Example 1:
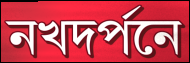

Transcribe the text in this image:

নখদর্পনে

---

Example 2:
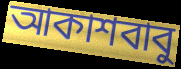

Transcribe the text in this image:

আকাশবাবু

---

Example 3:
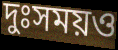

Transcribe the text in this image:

দুঃসময়ও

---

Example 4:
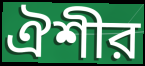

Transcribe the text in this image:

ঐশীর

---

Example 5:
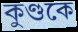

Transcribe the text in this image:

কুণ্ডকে